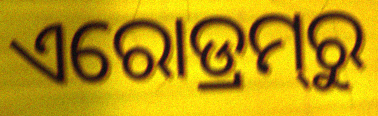
ଏରୋଡ୍ରମ୍‍ରୁ